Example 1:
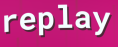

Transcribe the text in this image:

replay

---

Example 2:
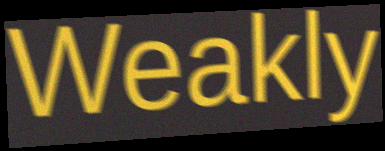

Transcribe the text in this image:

Weakly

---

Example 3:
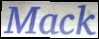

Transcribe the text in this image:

Mack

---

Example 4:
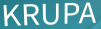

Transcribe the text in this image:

KRUPA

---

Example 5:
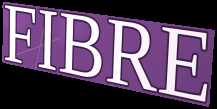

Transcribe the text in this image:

FIBRE